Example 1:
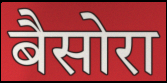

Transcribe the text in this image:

बैसोरा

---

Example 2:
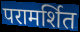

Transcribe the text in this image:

परामर्शित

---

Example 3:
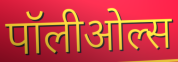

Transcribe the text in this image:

पॉलीओल्स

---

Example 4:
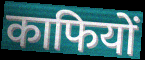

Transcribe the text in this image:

काफियों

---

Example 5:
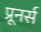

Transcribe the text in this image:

प्रूनर्स